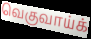
வெகுவாய்க்